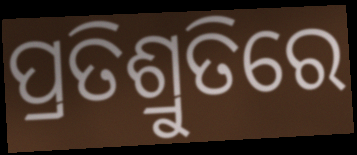
ପ୍ରତିଶ୍ରୁତିରେ